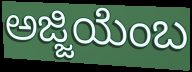
ಅಜ್ಜಿಯೆಂಬ